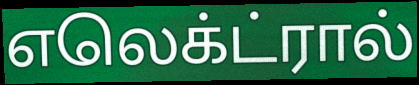
எலெக்ட்ரால்